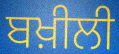
ਬਖ਼ੀਲੀ